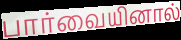
பார்வையினால்